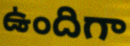
ఉందిగా